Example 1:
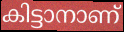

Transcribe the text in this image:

കിട്ടാനാണ്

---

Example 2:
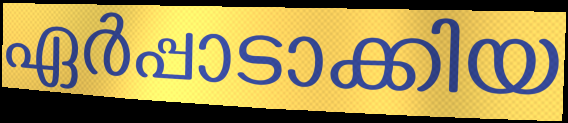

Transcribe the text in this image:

ഏർപ്പാടാക്കിയ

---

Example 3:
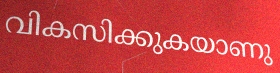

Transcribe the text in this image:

വികസിക്കുകയാണു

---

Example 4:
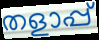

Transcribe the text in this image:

തളാപ്പ്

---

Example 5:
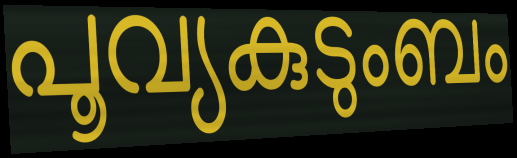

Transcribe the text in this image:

പൂവ്യകുടുംബം